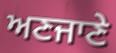
ਅਣਜਾਣੇ